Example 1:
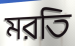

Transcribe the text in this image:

মরতি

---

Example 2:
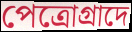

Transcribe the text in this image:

পেত্রোগ্রাদে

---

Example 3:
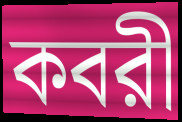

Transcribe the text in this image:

কবরী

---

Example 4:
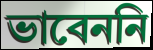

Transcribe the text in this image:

ভাবেননি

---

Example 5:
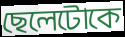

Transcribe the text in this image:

ছেলেটোকে